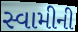
સ્વામીની